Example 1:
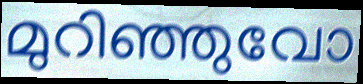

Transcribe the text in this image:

മുറിഞ്ഞുവോ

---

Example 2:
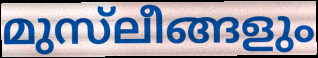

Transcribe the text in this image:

മുസ്‌ലീങ്ങളും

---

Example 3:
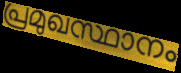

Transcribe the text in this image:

പ്രമുഖസ്ഥാനം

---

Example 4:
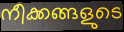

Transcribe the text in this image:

നീക്കങ്ങളുടെ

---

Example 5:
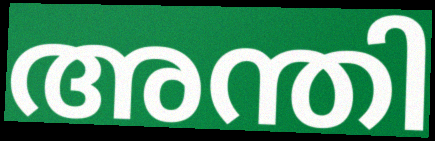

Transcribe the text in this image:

അന്തി